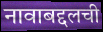
नावाबद्दलची